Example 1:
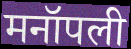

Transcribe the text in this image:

मनॉपली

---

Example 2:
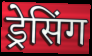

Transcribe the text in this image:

ड्रेसिंग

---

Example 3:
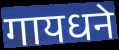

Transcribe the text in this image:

गायधने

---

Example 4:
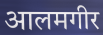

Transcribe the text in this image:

आलमगीर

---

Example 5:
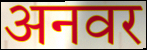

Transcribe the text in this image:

अनवर